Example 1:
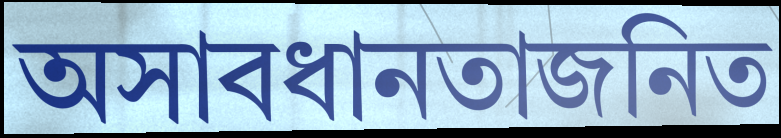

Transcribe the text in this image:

অসাবধানতাজনিত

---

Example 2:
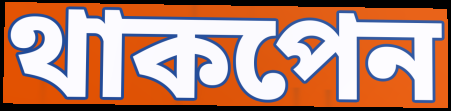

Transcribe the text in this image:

থাকপেন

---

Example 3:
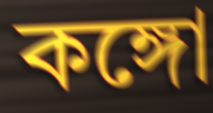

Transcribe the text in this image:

কঙ্গো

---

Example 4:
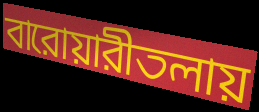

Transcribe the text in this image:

বারোয়ারীতলায়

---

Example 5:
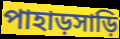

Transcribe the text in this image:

পাহাড়সাড়ি